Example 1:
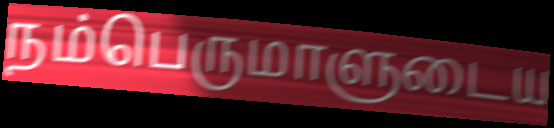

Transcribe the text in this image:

நம்பெருமாளுடைய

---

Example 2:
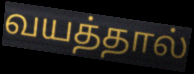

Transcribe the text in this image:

வயத்தால்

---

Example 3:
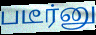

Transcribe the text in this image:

படீர்னு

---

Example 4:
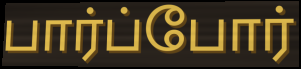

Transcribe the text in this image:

பார்ப்போர்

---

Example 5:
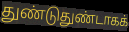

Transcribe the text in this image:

துண்டுதுண்டாகக்